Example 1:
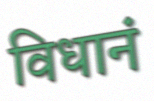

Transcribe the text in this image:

विधानं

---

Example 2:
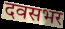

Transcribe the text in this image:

दवसभर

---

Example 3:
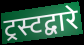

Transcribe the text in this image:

ट्रस्टद्वारे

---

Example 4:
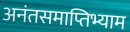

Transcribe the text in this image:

अनंतसमाप्तिभ्याम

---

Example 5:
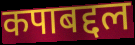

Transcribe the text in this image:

कपाबद्दल